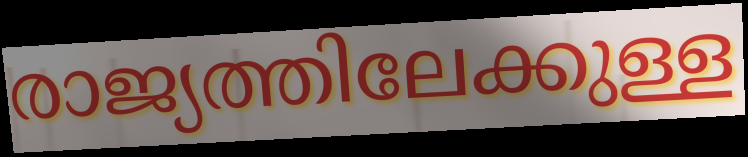
രാജ്യത്തിലേക്കുള്ള